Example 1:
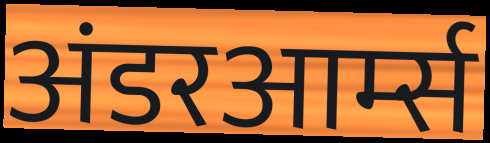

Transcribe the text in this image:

अंडरआर्म्‍स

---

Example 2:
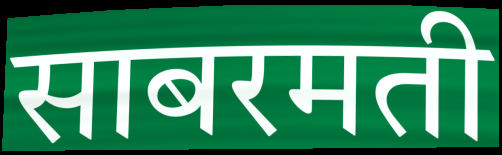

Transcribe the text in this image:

साबरमती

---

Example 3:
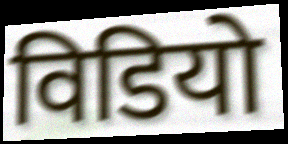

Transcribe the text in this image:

विडियो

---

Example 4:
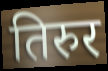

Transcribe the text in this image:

तिरुर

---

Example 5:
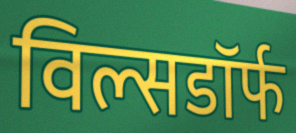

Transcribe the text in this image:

विल्सडॉर्फ